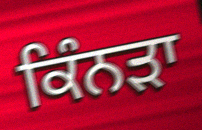
ਕਿੰਨੜਾ